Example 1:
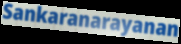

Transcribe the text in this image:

Sankaranarayanan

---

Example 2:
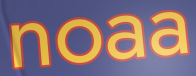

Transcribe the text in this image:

noaa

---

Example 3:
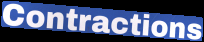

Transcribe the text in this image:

Contractions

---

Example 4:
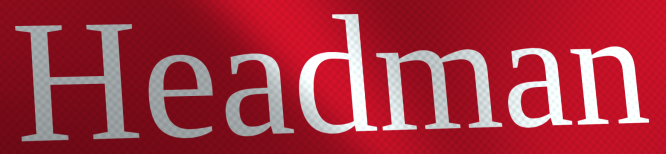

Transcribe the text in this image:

Headman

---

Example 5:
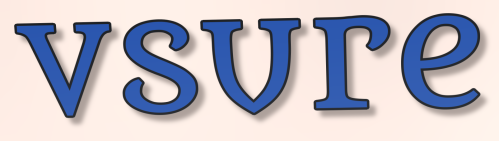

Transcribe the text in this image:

vsure